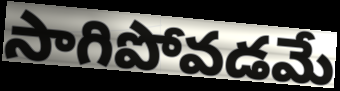
సాగిపోవడమే